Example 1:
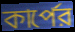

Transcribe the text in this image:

কার্পের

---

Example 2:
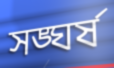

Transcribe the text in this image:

সঙ্ঘর্ষ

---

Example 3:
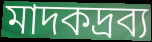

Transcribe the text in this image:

মাদকদ্রব্য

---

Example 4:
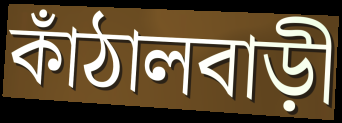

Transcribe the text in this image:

কাঁঠালবাড়ী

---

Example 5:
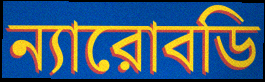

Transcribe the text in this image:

ন্যারোবডি